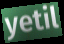
yetil